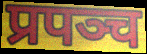
प्रपञ्च